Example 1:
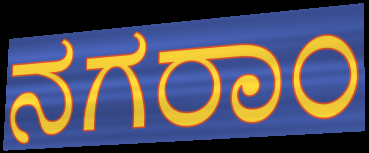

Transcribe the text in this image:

ನಗರಾಂ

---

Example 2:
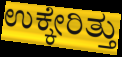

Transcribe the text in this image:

ಉಕ್ಕೇರಿತ್ತು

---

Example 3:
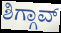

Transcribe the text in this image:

ಶಿಗ್ಗಾವ್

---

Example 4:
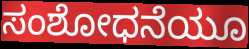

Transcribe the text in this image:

ಸಂಶೋಧನೆಯೂ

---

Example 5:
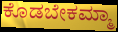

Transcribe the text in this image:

ಕೊಡಬೇಕಮ್ಮಾ